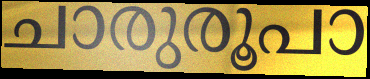
ചാരുരൂപാ